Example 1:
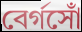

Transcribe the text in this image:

বের্গসোঁ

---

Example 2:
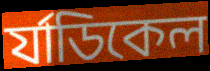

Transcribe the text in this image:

র্যাডিকেল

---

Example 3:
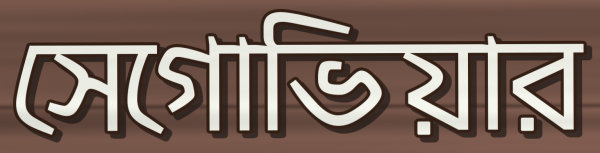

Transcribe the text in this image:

সেগোভিয়ার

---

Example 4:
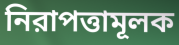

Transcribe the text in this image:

নিরাপত্তামূলক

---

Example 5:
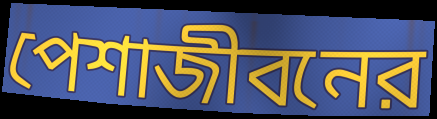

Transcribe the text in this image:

পেশাজীবনের